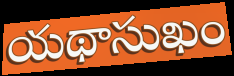
యథాసుఖం